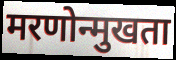
मरणोन्मुखता